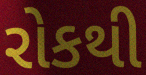
રોકથી